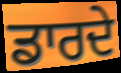
ਡਾਰਦੇ